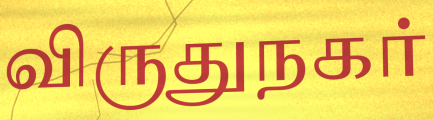
விருதுநகர்